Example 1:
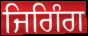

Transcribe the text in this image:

ਜਿਗਿੰਗ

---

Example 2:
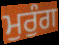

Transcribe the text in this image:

ਮੁਰੁੰਗ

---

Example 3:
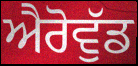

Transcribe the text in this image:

ਐਰੋਵੁੱਡ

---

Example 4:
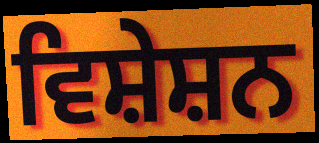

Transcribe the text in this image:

ਵਿਸ਼ੇਸ਼ਨ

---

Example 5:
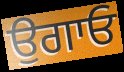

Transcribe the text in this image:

ਉਗਾਓ